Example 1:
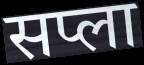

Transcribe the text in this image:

सप्ला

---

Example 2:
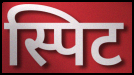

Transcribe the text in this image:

स्पिट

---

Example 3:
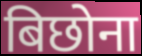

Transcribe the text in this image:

बिछोना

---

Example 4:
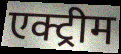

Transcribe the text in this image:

एक्ट्रीम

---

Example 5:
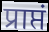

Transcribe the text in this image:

प्राप्तं